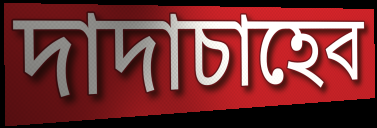
দাদাচাহেব